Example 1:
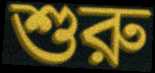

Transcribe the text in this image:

শুরু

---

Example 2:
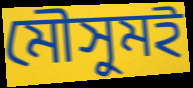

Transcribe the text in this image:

মৌসুমই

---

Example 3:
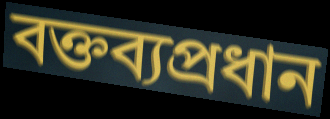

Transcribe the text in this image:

বক্তব্যপ্রধান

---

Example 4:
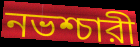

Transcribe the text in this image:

নভশ্চারী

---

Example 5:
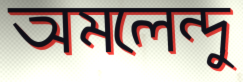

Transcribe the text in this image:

অমলেন্দু